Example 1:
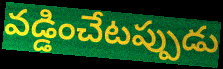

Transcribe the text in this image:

వడ్డించేటప్పుడు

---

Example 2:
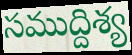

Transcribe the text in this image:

సముద్దిశ్య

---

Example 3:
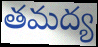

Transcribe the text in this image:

తమద్య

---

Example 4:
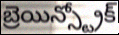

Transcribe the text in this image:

బ్రెయిన్స్ట్రోక్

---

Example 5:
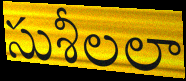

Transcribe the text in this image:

సుశీలలా